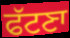
ਫੱਟਣਾ